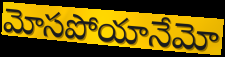
మోసపోయానేమో